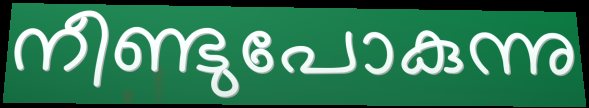
നീണ്ടുപോകുന്നു